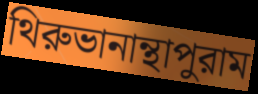
থিরুভানান্থাপুরাম